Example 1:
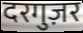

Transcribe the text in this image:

दरगुज़र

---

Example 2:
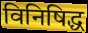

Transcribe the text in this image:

विनिषिद्ध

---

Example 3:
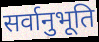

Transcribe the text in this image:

सर्वानुभूति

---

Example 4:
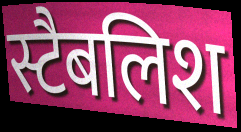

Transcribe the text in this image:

स्टैबलिश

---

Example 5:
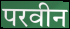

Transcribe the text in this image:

परवीन